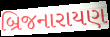
બ્રિજનારાયણ